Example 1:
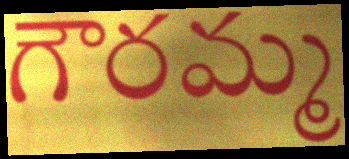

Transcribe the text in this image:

గౌరమ్మ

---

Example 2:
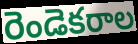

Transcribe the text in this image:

రెండెకరాల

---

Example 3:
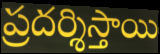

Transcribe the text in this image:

ప్రదర్శిస్తాయి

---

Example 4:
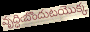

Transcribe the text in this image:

వృద్ధిఁబొందుటయొక్క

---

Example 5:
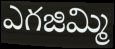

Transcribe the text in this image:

ఎగజిమ్మి